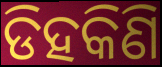
ଡିହକିଣି